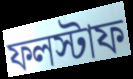
ফলস্টাফ